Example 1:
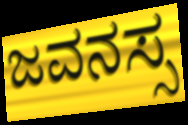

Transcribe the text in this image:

ಜವನಸ್ಸ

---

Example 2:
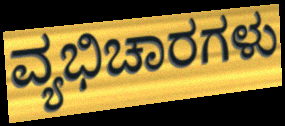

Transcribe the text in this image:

ವ್ಯಭಿಚಾರಗಳು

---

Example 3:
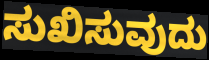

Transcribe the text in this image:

ಸುಖಿಸುವುದು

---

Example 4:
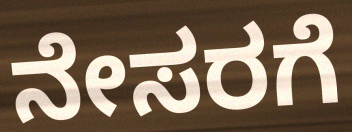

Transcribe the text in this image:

ನೇಸರಗೆ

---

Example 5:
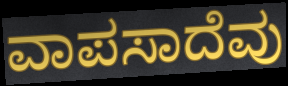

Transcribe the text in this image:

ವಾಪಸಾದೆವು